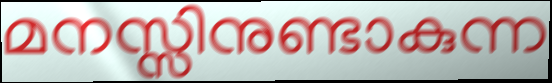
മനസ്സിനുണ്ടാകുന്ന